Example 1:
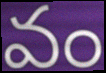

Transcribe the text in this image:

వం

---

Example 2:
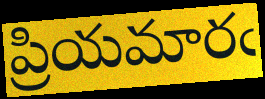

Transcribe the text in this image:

ప్రియమారఁ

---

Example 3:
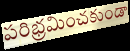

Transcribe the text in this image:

పరిభ్రమించకుండా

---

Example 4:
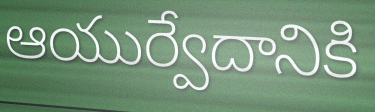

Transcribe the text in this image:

ఆయుర్వేదానికి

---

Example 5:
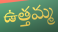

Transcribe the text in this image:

ఉత్తమ్మ